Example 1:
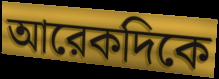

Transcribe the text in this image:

আরেকদিকে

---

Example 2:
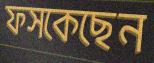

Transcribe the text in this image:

ফসকেছেন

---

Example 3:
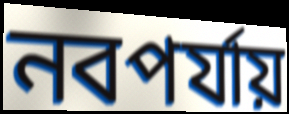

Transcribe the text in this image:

নবপর্যায়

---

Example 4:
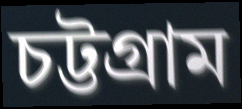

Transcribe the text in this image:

চট্টগ্রাম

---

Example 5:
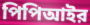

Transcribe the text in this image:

পিপিআইর